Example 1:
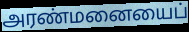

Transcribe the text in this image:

அரண்மனையைப்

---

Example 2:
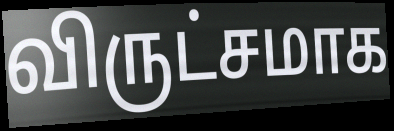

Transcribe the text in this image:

விருட்சமாக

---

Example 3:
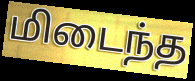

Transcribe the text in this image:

மிடைந்த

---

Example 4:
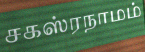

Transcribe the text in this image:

சகஸ்ரநாமம்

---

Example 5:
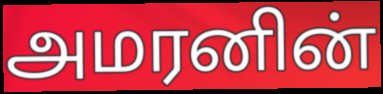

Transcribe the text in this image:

அமரனின்